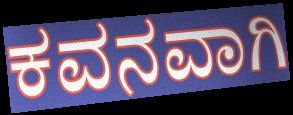
ಕವನವಾಗಿ